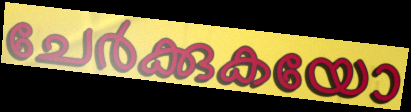
ചേർക്കുകയോ